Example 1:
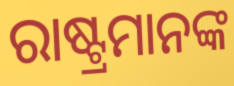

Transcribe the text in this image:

ରାଷ୍ଟ୍ରମାନଙ୍କ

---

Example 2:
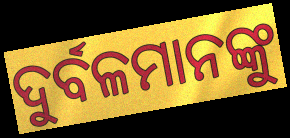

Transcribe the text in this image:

ଦୁର୍ବଳମାନଙ୍କୁ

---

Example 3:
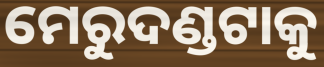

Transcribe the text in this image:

ମେରୁଦଣ୍ଡଟାକୁ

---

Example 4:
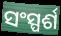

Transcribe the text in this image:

ସଂସ୍ପର୍ଶ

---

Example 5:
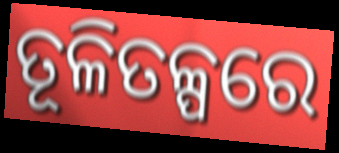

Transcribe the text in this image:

ତୂଳିତଳ୍ପରେ